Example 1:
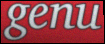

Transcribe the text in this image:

genu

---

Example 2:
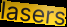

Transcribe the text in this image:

lasers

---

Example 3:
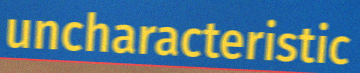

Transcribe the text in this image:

uncharacteristic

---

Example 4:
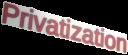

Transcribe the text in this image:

Privatization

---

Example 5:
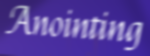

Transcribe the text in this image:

Anointing